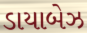
ડાયાબેઝ